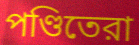
পণ্ডিতেরা